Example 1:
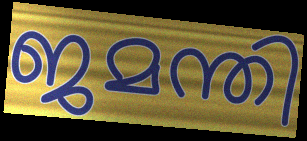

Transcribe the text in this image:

ജമന്തി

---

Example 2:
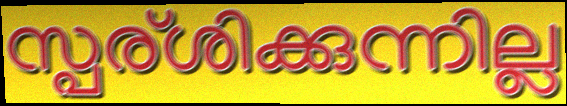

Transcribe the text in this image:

സ്പര്ശിക്കുന്നില്ല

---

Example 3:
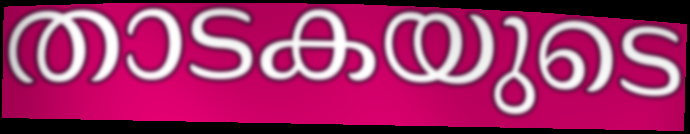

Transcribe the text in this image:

താടകയുടെ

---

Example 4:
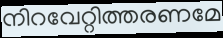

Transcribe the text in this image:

നിറവേറ്റിത്തരണമേ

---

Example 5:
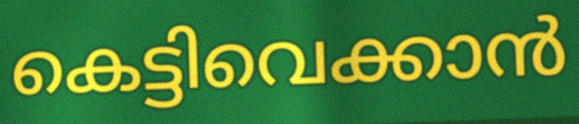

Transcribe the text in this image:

കെട്ടിവെക്കാൻ